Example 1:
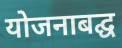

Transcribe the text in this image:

योजनाबद्घ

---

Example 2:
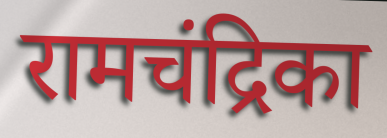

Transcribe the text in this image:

रामचंद्रिका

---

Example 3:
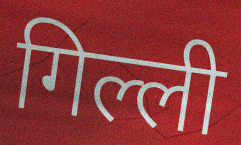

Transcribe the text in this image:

गिल्ली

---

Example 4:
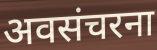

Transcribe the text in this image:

अवसंचरना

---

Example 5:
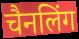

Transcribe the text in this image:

चैनलिंग